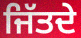
ਜਿੱਤਦੇ